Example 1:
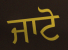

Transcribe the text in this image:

ਜਾਟੋ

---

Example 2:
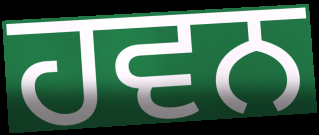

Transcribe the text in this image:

ਹਵਨ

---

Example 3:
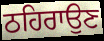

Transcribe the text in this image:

ਠਹਿਰਾਉਣ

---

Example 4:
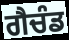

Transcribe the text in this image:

ਗੈਚੰਡ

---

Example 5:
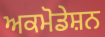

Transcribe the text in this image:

ਅਕਮੋਡੇਸ਼ਨ